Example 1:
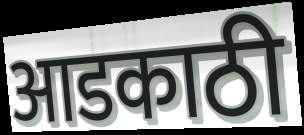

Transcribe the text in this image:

आडकाठी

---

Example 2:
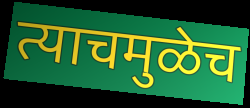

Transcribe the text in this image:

त्याचमुळेच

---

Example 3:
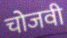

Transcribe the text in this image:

चोजवी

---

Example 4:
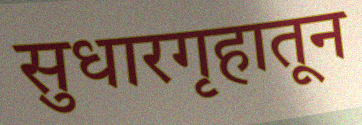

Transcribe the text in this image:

सुधारगृहातून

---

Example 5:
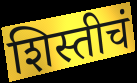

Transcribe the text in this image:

शिस्तीचं